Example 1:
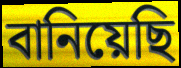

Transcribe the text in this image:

বানিয়েছি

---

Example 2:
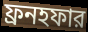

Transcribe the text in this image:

ফ্রনহফার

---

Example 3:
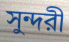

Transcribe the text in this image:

সুন্দরী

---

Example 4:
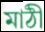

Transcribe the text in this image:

মাঠী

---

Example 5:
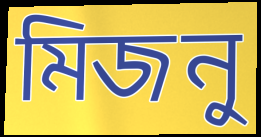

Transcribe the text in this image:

মিজনু